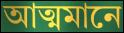
আত্মমানে